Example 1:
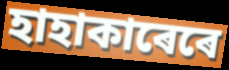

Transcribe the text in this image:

হাহাকাৰেৰে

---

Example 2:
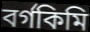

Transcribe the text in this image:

বৰ্গকিমি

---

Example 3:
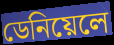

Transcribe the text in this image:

ডেনিয়েলে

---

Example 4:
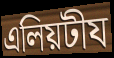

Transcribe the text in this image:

এলিয়টীয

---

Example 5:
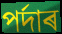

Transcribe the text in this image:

পৰ্দাৰ